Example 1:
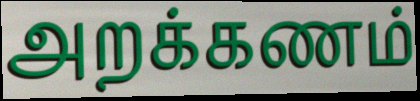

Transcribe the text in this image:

அறக்கணம்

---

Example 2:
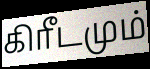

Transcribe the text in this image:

கிரீடமும்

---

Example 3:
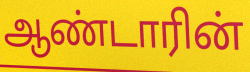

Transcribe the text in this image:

ஆண்டாரின்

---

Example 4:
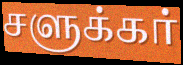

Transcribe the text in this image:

சளுக்கர்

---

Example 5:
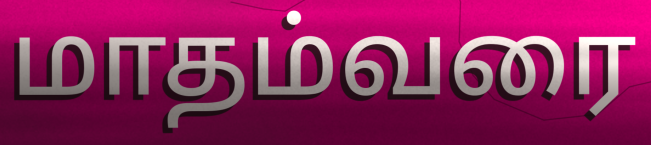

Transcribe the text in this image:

மாதம்வரை